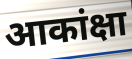
आकांक्षा